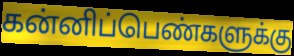
கன்னிப்பெண்களுக்கு